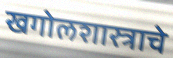
खगोलशास्त्राचे